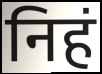
निहं